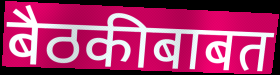
बैठकीबाबत